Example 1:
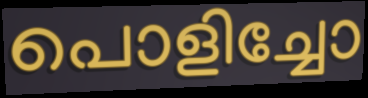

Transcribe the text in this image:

പൊളിച്ചോ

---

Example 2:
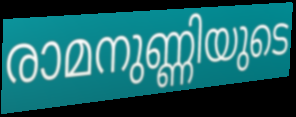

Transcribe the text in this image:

രാമനുണ്ണിയുടെ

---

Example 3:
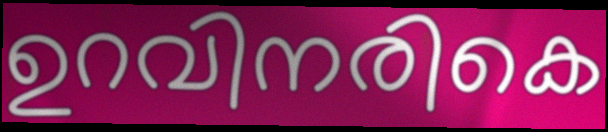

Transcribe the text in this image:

ഉറവിനരികെ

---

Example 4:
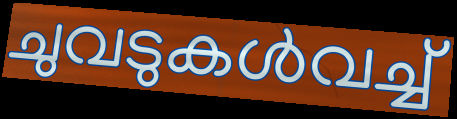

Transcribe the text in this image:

ചുവടുകൾവച്ച്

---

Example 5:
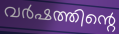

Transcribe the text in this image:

വർഷത്തിന്റെ